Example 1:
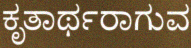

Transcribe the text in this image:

ಕೃತಾರ್ಥರಾಗುವ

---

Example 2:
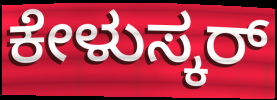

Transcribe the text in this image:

ಕೇಳುಸ್ಕರ್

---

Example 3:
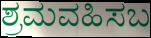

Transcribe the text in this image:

ಶ್ರಮವಹಿಸಬ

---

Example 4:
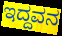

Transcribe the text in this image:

ಇದ್ದವನ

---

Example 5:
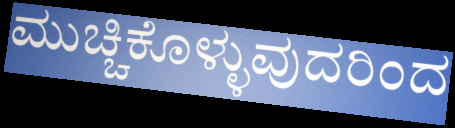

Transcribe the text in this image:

ಮುಚ್ಚಿಕೊಳ್ಳುವುದರಿಂದ